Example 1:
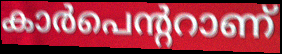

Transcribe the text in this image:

കാർപെന്ററാണ്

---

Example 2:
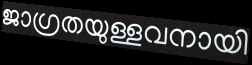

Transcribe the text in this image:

ജാഗ്രതയുള്ളവനായി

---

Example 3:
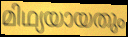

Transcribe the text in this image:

മിഥ്യയായതും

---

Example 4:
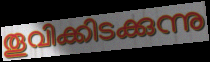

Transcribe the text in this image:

തൂവിക്കിടക്കുന്നു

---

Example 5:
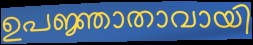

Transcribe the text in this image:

ഉപജ്ഞാതാവായി